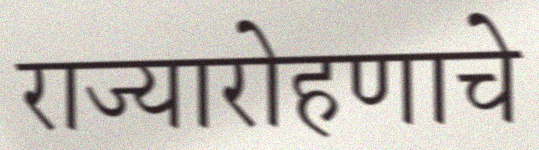
राज्यारोहणाचे